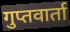
गुप्तवार्ता